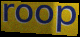
roop